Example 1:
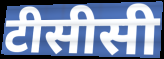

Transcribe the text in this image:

टीसीसी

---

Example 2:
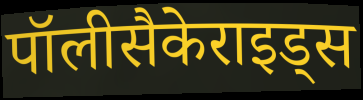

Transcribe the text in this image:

पॉलीसैकेराइड्स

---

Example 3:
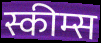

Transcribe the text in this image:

स्‍कीम्‍स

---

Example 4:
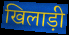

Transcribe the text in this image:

खिलाड़ी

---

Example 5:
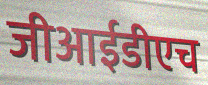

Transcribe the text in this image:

जीआईडीएच